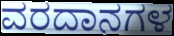
ವರದಾನಗಳ